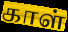
காள்